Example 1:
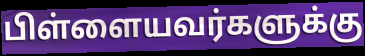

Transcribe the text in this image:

பிள்ளையவர்களுக்கு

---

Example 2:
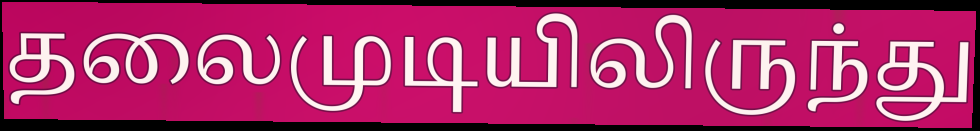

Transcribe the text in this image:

தலைமுடியிலிருந்து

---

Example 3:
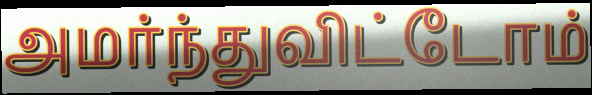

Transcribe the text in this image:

அமர்ந்துவிட்டோம்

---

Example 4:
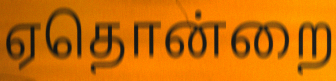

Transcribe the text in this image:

ஏதொன்றை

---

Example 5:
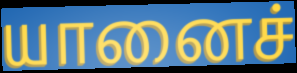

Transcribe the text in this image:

யானைச்